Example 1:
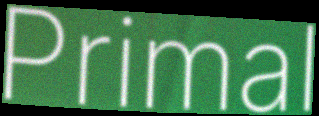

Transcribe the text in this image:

Primal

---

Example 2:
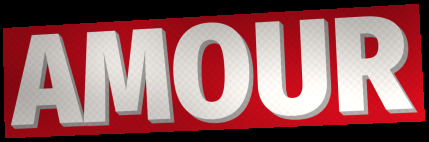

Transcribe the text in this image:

AMOUR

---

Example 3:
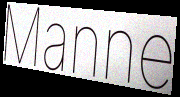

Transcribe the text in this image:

Manne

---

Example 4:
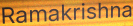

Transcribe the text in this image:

Ramakrishna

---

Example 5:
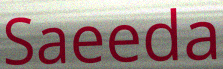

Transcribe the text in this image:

Saeeda